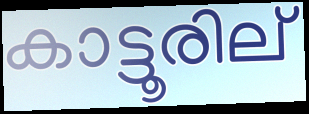
കാട്ടൂരില്